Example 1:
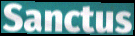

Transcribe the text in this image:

Sanctus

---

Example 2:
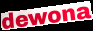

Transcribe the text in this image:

dewona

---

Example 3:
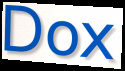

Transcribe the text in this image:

Dox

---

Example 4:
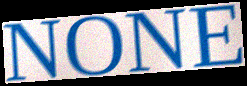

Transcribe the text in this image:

NONE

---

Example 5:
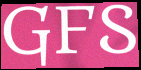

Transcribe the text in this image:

GFS